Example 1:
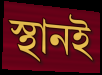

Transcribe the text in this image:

স্থানই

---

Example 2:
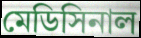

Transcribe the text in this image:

মেডিসিনাল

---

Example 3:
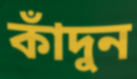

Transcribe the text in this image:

কাঁদুন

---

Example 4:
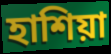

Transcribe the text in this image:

হাশিয়া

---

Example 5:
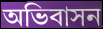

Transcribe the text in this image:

অভিবাসন